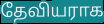
தேவியராக